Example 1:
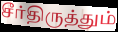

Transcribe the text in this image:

சீர்திருத்தும்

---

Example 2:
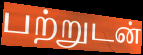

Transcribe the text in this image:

பற்றுடன்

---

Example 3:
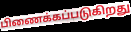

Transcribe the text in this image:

பிணைக்கப்படுகிறது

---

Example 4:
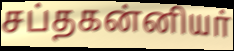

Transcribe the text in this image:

சப்தகன்னியர்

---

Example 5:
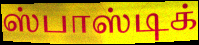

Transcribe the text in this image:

ஸ்பாஸ்டிக்